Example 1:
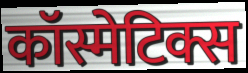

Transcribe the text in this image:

कॉस्मेटिक्स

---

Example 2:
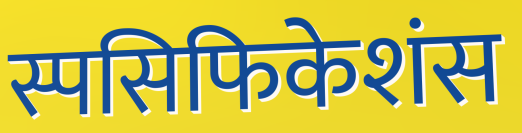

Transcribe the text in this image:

स्पसिफिकेशंस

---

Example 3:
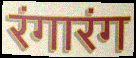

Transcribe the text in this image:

रंगारंग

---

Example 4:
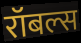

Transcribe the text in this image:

रॉबल्स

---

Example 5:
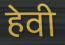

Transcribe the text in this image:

हेवी